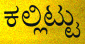
ಕಲ್ಲಿಟ್ಟು